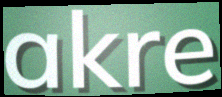
akre